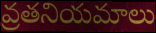
వ్రతనియమాలు